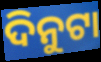
ଦିନୁଟା